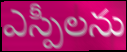
ఎస్పీలను